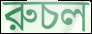
রুচল